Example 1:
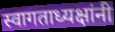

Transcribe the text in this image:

स्वागताध्यक्षांनी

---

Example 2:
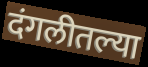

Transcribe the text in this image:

दंगलीतल्या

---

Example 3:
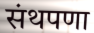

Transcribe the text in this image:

संथपणा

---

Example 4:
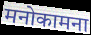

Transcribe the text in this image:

मनोकामना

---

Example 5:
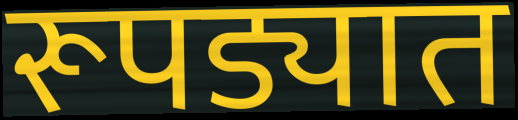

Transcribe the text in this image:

रूपड्यात